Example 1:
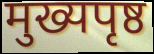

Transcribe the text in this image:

मुख्यपृष्ठ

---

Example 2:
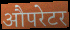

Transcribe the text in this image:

औपरेटर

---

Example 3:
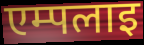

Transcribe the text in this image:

एम्पलाइ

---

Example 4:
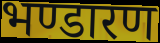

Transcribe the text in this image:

भण्डारण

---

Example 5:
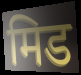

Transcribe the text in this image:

मिड